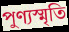
পুণ্যস্মৃতি